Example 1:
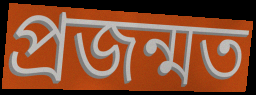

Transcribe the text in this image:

প্ৰজন্মত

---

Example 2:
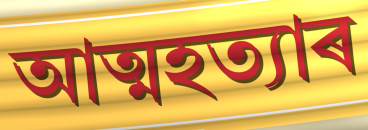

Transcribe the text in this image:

আত্মহত্যাৰ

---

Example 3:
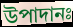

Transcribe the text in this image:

উপাদানঃ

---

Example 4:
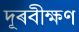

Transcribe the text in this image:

দূৰবীক্ষণ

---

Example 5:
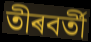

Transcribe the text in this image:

তীৰবৰ্তী